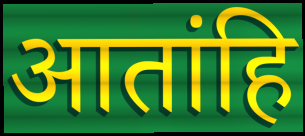
आतांहि